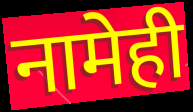
नामेही